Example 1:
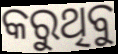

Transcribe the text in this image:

କରୁଥିବୁ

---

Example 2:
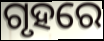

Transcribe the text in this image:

ଗୃହରେ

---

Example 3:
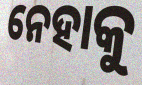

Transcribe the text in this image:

ନେହାକୁ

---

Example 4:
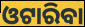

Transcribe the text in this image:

ଓଟାରିବା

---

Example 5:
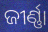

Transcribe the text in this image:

ଜୀର୍ଣ୍ଣା